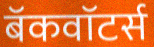
बॅकवॉटर्स